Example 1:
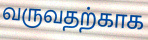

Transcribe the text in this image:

வருவதற்காக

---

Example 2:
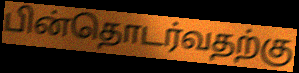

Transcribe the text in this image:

பின்தொடர்வதற்கு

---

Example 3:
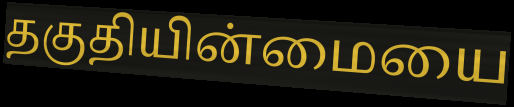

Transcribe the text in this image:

தகுதியின்மையை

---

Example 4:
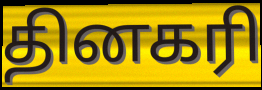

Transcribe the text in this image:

தினகரி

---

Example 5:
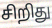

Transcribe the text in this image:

சிறிது